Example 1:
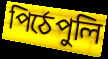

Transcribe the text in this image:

পিঠেপুলি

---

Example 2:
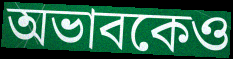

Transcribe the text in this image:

অভাবকেও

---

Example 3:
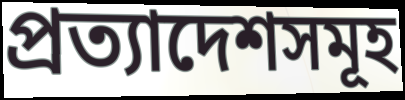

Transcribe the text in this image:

প্রত্যাদেশসমূহ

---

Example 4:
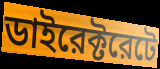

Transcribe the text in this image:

ডাইরেক্টরেটে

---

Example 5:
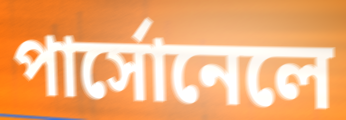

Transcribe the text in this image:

পার্সোনেলে